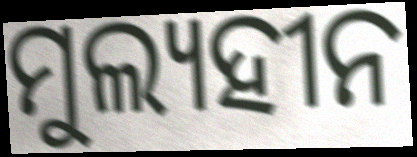
ମୁଲ୍ୟହୀନ